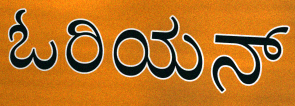
ಓರಿಯನ್